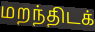
மறந்திடக்